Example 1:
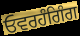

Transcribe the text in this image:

ਓਵਰਹੰਗਿੰਗ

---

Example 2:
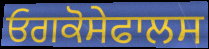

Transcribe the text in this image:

ਓਗਕੋਸੇਫਾਲਸ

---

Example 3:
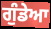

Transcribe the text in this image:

ਗੁੰਡੇਆ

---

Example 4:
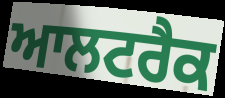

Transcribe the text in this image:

ਆਲਟਰੈਕ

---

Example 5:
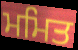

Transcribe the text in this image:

ਮਮਿਤ